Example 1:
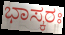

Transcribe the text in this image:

ಭಾಸ್ಕರಃ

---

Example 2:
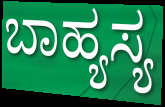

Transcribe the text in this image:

ಬಾಹ್ಯಸ್ಯ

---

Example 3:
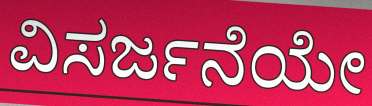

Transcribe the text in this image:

ವಿಸರ್ಜನೆಯೇ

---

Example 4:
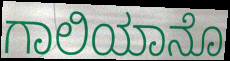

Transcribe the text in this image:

ಗಾಲಿಯಾನೊ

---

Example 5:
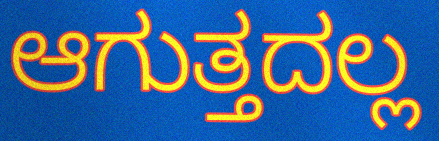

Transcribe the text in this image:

ಆಗುತ್ತದಲ್ಲ